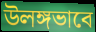
উলঙ্গভাবে